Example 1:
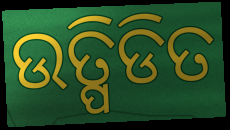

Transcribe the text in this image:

ଉତ୍ପିଡିତ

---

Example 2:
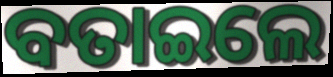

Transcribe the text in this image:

ବତାଇଲେ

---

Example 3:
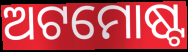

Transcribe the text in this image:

ଅଟମୋଷ୍ଟ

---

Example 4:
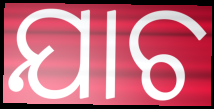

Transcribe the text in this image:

ଯାଚ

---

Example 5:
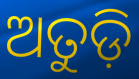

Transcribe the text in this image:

ଅତୁଡ଼ି